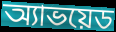
অ্যাভয়েড